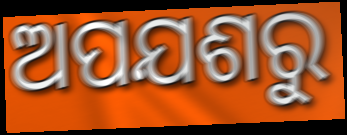
ଅପଯଶରୁ